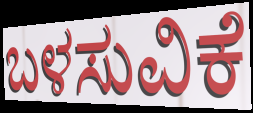
ಬಳಸುವಿಕೆ